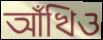
আঁখিও